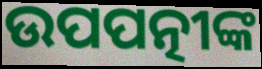
ଉପପତ୍ନୀଙ୍କ